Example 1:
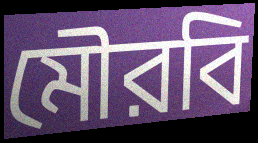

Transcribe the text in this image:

মৌরবি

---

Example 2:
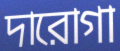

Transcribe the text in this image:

দারোগা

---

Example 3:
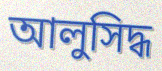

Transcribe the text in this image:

আলুসিদ্ধ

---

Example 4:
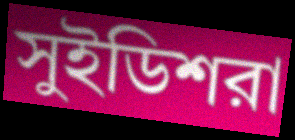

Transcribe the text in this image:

সুইডিশরা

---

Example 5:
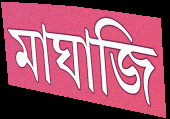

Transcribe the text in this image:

মাঘাজি